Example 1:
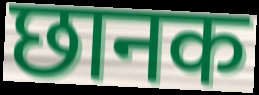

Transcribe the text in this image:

छानक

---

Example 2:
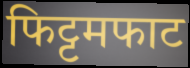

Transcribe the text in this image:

फिट्टमफाट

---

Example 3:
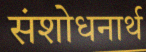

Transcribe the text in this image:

संशोधनार्थ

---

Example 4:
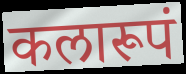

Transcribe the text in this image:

कलारूपं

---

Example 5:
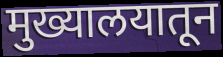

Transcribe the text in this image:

मुख्यालयातून